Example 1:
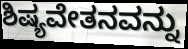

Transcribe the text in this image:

ಶಿಷ್ಯವೇತನವನ್ನು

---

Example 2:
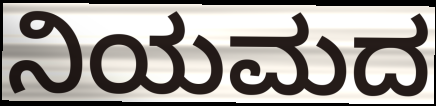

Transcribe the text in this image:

ನಿಯಮದ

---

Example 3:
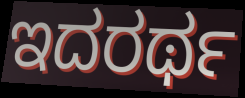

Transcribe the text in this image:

ಇದರರ್ಥ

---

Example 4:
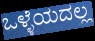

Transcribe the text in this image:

ಒಳ್ಳೆಯದಲ್ಲ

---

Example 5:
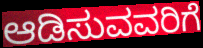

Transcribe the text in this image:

ಆಡಿಸುವವರಿಗೆ